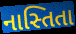
નાસ્તિતા